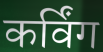
कर्विंग